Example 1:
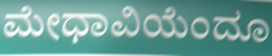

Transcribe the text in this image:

ಮೇಧಾವಿಯೆಂದೂ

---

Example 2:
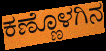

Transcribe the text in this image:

ಕಣ್ಣೊಳಗಿನ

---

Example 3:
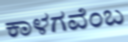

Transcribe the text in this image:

ಕಾಳಗವೆಂಬ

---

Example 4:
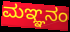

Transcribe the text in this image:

ಮಞ್ಞನಂ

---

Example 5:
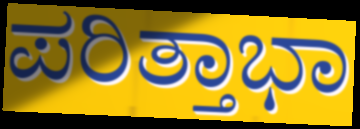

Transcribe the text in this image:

ಪರಿತ್ತಾಭಾ